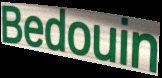
Bedouin